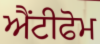
ਐਂਟੀਫੋਮ